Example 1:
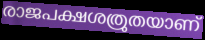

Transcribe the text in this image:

രാജപക്ഷശത്രുതയാണ്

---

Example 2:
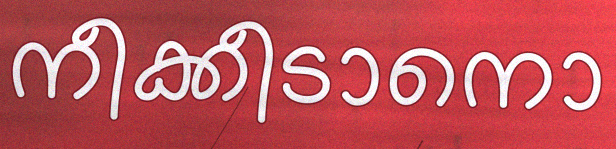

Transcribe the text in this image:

നീക്കീടാനൊ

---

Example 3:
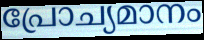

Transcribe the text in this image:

പ്രോച്യമാനം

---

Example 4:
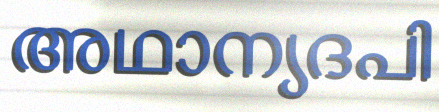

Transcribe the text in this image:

അഥാന്യദപി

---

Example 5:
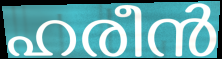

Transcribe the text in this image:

ഹരീൻ